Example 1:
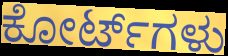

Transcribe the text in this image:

ಕೋರ್ಟ್‌ಗಳು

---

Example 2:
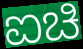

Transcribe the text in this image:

ಐಚಿ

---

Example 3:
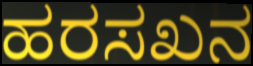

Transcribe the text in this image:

ಹರಸಖನ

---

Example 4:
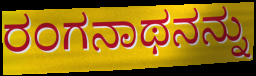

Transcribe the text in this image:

ರಂಗನಾಥನನ್ನು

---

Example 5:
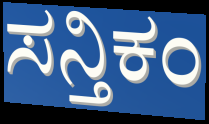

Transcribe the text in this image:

ಸನ್ತಿಕಂ